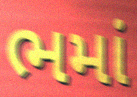
ભમાં